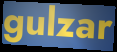
gulzar